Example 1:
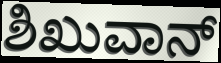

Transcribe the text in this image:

ಶಿಖುವಾನ್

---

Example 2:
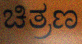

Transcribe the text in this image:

ಚಿತ್ರಣ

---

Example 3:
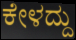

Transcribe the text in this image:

ಕೇಳದ್ದು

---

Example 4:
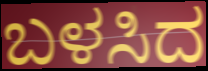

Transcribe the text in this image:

ಬಳಸಿದ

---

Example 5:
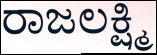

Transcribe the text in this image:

ರಾಜಲಕ್ಷ್ಮಿ